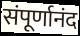
संपूर्णानंद